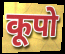
कूपो